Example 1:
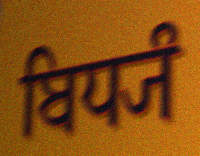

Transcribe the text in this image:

ਬਿਧ੍ਯੰ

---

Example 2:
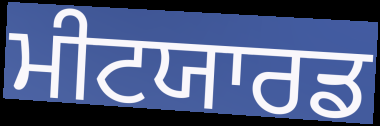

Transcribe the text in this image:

ਮੀਟਯਾਰਡ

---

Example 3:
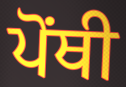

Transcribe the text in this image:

ਪੋਂਥੀ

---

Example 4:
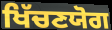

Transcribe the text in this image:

ਖਿੱਚਣਯੋਗ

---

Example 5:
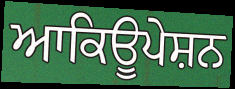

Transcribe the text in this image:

ਆਕਿਊਪੇਸ਼ਨ